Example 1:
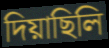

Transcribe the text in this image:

দিয়াছিলি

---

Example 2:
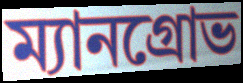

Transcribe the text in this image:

ম্যানগ্রোভ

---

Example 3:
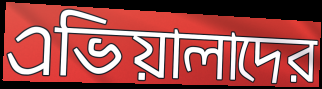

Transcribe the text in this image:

এভিয়ালাদের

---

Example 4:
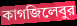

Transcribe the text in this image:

কাগজিলেবুর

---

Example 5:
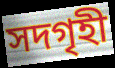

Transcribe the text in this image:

সদগৃহী